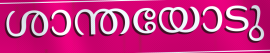
ശാന്തയോടു